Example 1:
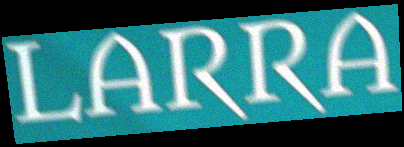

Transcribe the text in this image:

LARRA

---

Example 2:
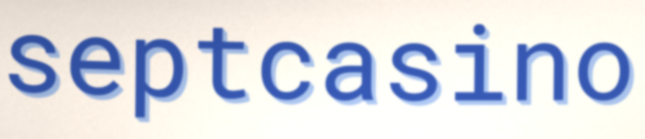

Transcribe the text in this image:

septcasino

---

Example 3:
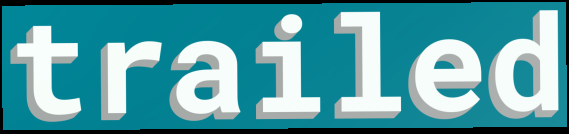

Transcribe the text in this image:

trailed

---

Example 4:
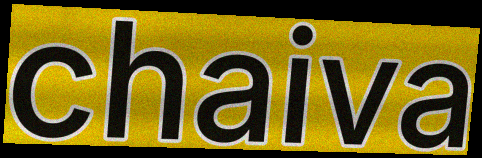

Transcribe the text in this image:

chaiva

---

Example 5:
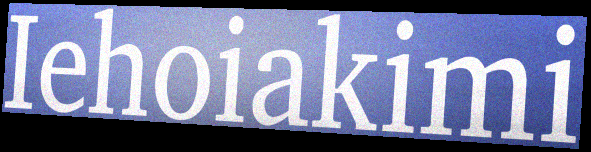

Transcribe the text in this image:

Iehoiakimi